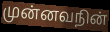
முன்னவநின்